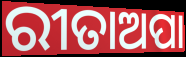
ରୀତାଅପା